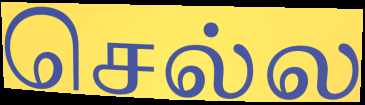
செல்ல